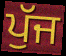
ਪੁੱਜ